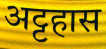
अट्टहास